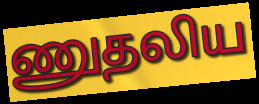
ணுதலிய